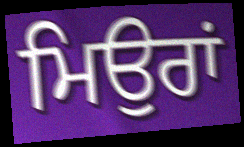
ਮਿਉਰਾਂ